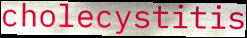
cholecystitis